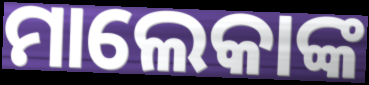
ମାଲେକାଙ୍କ